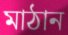
মাঠান